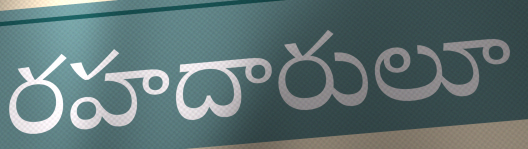
రహదారులూ